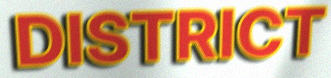
DISTRICT